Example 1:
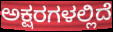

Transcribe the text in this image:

ಅಕ್ಷರಗಳಲ್ಲಿದೆ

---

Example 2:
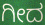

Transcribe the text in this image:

ಗೀದ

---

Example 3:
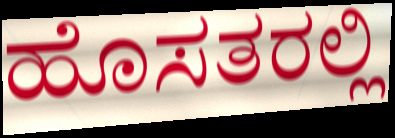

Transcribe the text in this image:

ಹೊಸತರಲ್ಲಿ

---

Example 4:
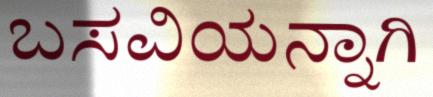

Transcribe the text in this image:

ಬಸವಿಯನ್ನಾಗಿ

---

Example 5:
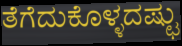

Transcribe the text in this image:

ತೆಗೆದುಕೊಳ್ಳದಷ್ಟು